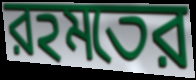
রহমতের